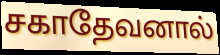
சகாதேவனால்